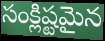
సంక్లిష్టమైన